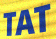
TAT